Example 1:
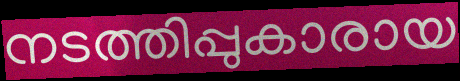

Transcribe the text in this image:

നടത്തിപ്പുകാരായ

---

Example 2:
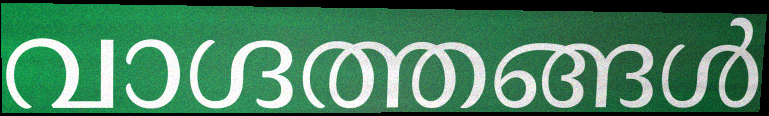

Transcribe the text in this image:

വാഗ്ദത്തങ്ങൾ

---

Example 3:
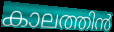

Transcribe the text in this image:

കാലത്തിൻ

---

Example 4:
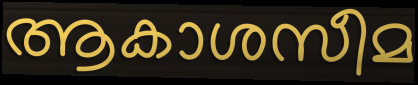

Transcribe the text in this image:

ആകാശസീമ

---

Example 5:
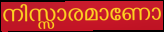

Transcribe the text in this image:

നിസ്സാരമാണോ